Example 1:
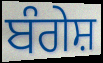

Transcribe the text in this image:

ਬੰਗੇਸ਼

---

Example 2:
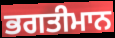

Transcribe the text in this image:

ਭਗਤੀਮਾਨ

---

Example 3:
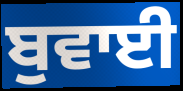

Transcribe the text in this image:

ਬੁਵਾਈ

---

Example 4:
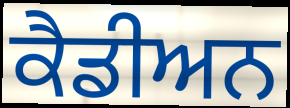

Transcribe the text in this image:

ਕੈਡੀਅਨ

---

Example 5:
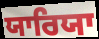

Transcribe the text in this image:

ਯਾਰਿਯਾ